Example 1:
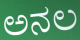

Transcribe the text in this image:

ಅನಲ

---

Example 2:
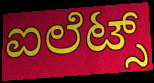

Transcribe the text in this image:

ಐಲೆಟ್ಸ್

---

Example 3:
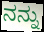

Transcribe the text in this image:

ನನ್ನು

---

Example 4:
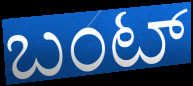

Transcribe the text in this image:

ಬಂಟ್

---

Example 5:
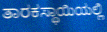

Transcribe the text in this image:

ತಾರಕಸ್ಥಾಯಿಯಲ್ಲಿ